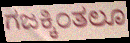
ಗಜಕ್ಕಿಂತಲೂ